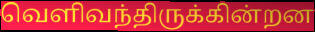
வெளிவந்திருக்கின்றன